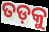
ତଡ଼କୁ